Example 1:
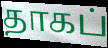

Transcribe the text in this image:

தாகப்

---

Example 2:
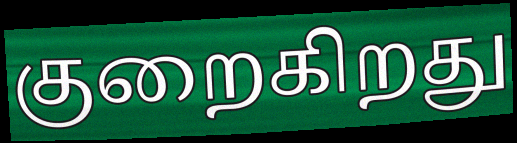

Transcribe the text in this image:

குறைகிறது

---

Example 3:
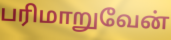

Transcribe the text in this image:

பரிமாறுவேன்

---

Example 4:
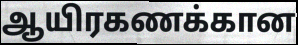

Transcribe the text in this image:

ஆயிரகணக்கான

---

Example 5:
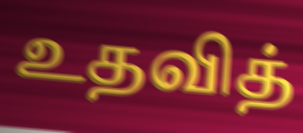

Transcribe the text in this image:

உதவித்